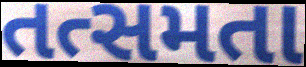
તત્સમતા